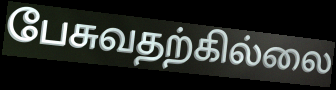
பேசுவதற்கில்லை